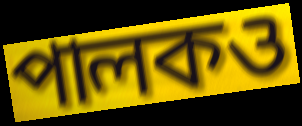
পালকও